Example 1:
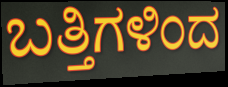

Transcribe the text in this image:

ಬತ್ತಿಗಳಿಂದ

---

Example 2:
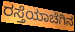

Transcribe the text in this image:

ರಸ್ತೆಯಾಚೆಗಿನ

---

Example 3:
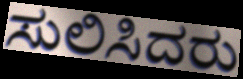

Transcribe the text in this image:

ಸುಲಿಸಿದರು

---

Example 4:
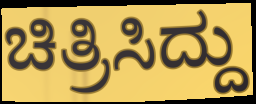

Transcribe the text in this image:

ಚಿತ್ರಿಸಿದ್ದು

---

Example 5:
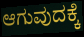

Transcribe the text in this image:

ಆಗುವುದಕ್ಕೆ